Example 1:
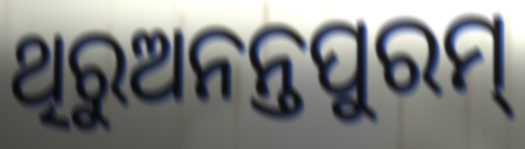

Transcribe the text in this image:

ଥିରୁଅନନ୍ତପୁରମ୍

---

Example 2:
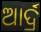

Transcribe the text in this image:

ଆର୍ଦ୍ର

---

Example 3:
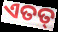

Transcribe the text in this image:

ଏତତ୍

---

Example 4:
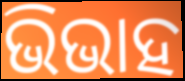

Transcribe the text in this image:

ଭିଭାହ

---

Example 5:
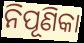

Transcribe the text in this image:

ନିପୂଣିକା